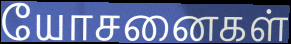
யோசனைகள்